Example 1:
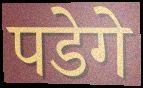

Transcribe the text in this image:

पडेगे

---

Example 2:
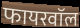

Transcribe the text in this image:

फायरवॉल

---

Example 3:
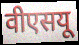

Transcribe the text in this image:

वीएसयू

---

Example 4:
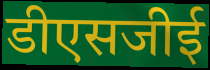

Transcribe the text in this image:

डीएसजीई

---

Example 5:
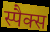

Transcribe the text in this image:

स्पैक्स